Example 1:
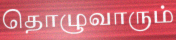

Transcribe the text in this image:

தொழுவாரும்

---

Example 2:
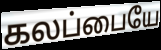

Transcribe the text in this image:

கலப்பையே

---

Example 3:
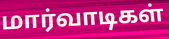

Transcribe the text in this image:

மார்வாடிகள்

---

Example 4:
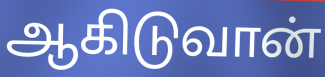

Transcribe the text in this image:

ஆகிடுவான்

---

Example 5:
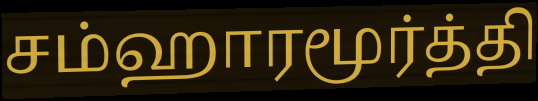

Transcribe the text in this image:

சம்ஹாரமூர்த்தி